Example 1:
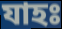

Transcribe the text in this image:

যাহঃ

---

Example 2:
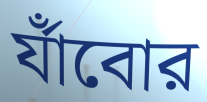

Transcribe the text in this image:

র্যাঁবোর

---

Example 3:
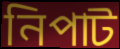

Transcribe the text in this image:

নিপাট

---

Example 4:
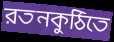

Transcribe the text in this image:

রতনকুঠিতে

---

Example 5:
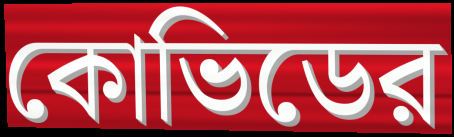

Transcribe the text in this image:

কোভিডের